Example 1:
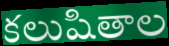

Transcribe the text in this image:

కలుషితాల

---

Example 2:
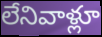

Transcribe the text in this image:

లేనివాళ్లూ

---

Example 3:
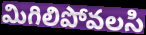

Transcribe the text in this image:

మిగిలిపోవలసి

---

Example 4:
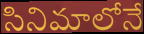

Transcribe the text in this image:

సినిమాలోనే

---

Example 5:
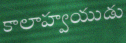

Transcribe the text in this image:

కాలాహ్వయుడు